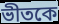
ভীতকে